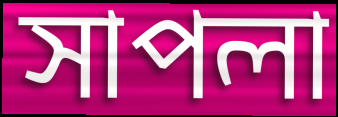
সাপলা